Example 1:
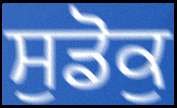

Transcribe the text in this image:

ਸੁਡੋਕੁ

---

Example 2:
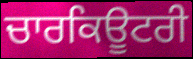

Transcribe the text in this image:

ਚਾਰਕਿਊਟਰੀ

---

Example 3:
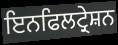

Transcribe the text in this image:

ਇਨਫਿਲਟ੍ਰੇਸ਼ਨ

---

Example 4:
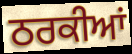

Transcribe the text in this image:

ਠਰਕੀਆਂ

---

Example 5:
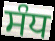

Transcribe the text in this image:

ਸੰਧ